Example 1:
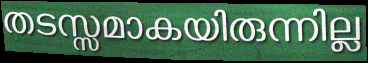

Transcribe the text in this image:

തടസ്സമാകയിരുന്നില്ല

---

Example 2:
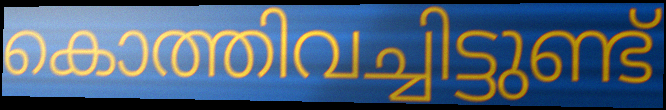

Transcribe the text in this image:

കൊത്തിവച്ചിട്ടുണ്ട്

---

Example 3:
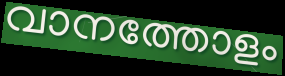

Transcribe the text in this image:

വാനത്തോളം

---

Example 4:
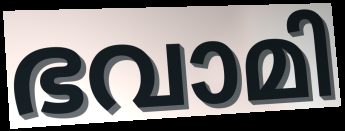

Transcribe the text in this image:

ഭവാമി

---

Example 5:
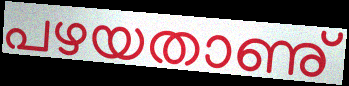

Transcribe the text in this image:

പഴയതാണു്